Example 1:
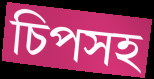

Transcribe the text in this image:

চিপসহ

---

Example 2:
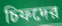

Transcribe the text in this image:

চিফদের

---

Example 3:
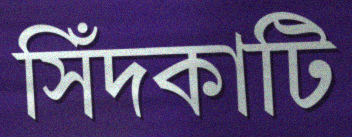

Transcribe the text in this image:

সিঁদকাটি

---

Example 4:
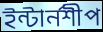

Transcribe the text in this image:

ইন্টার্নশীপ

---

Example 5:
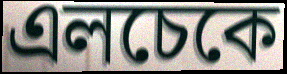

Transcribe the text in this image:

এলচেকে